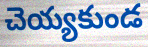
చెయ్యకుండ